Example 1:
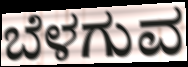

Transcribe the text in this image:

ಬೆಳಗುವ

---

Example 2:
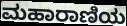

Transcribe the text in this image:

ಮಹಾರಾಣಿಯ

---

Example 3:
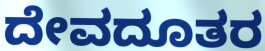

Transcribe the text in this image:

ದೇವದೂತರ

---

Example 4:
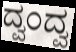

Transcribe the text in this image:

ದ್ವಂದ್ವ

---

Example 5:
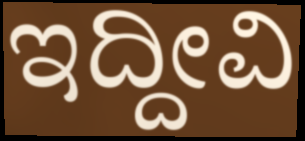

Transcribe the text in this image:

ಇದ್ದೀವಿ